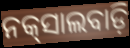
ନକ୍‌ସାଲବାଡ଼ି